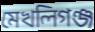
মেখলিগঞ্জ